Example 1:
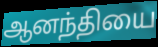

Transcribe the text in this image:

ஆனந்தியை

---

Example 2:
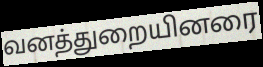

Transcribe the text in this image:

வனத்துறையினரை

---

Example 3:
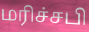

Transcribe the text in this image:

மரிச்சபி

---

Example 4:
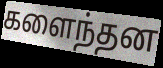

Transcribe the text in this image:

களைந்தன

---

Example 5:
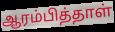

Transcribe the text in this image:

ஆரம்பித்தாள்